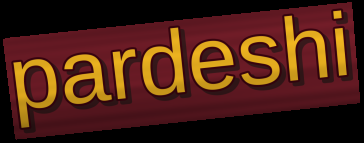
pardeshi